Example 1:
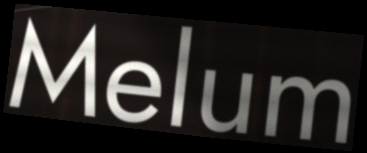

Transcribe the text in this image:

Melum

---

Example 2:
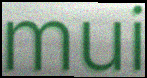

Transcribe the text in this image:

mui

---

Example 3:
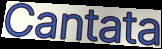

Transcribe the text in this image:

Cantata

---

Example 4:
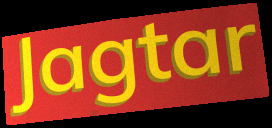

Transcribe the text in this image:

Jagtar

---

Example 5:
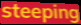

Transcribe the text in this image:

steeping